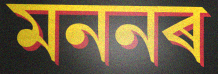
মননৰ